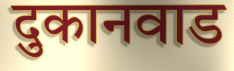
दुकानवाड